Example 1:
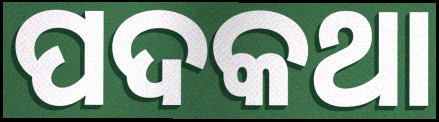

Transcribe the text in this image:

ପଦକଥା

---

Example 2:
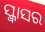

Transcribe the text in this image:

ସ୍କ୍ବାସର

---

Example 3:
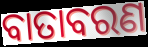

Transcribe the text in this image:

ବାତାବରଣ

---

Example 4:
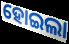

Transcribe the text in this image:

ହୋଇଲା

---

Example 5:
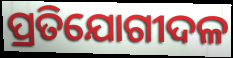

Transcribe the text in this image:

ପ୍ରତିଯୋଗୀଦଳ